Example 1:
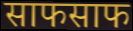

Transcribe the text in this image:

साफसाफ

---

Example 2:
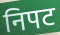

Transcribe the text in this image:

निपट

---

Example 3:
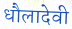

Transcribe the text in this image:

धौलादेवी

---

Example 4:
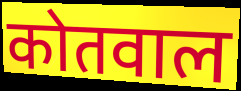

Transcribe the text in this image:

कोतवाल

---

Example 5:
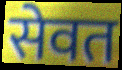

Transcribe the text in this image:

सेवत